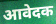
आवेदक